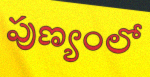
పుణ్యంలో